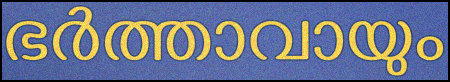
ഭർത്താവായും